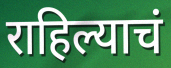
राहिल्याचं